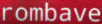
rombave